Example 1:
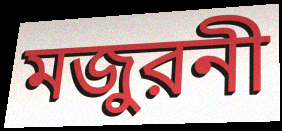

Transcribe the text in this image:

মজুরনী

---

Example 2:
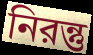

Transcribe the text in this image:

নিরন্তু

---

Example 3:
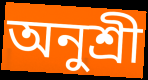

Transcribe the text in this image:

অনুশ্রী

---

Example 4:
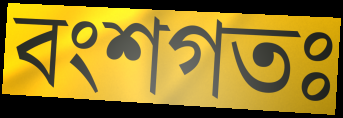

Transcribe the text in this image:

বংশগতঃ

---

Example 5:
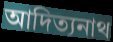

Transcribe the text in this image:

আদিত্যনাথ